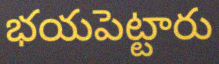
భయపెట్టారు